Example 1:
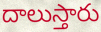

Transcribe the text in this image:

దాలుస్తారు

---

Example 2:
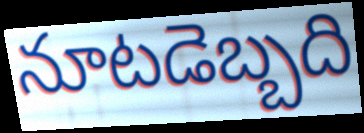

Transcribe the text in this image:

నూటడెబ్బది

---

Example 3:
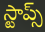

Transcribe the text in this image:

స్టాప్స్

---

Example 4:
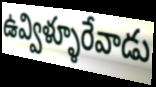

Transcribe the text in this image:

ఉవ్విళ్ళూరేవాడు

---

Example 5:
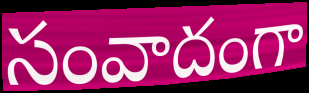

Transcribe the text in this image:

సంవాదంగా